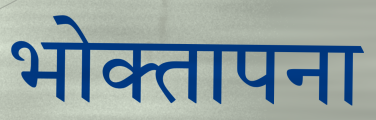
भोक्तापना